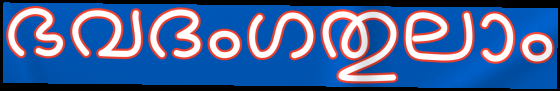
ഭവദംഗതുലാം